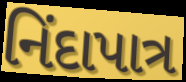
નિંદાપાત્ર